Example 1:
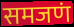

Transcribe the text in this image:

समजणं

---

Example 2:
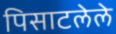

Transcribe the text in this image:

पिसाटलेले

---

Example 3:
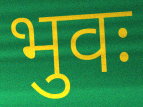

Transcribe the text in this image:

भुवः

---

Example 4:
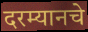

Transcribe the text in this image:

दरम्यानचे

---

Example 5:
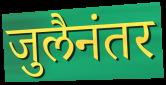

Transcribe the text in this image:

जुलैनंतर